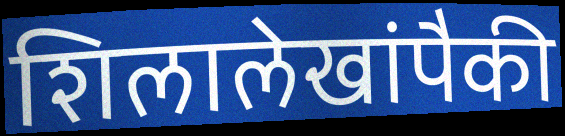
शिलालेखांपैकी